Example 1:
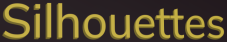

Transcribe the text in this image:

Silhouettes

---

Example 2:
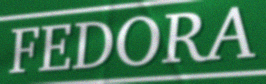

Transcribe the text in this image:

FEDORA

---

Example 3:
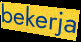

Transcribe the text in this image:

bekerja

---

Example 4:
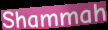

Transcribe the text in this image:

Shammah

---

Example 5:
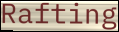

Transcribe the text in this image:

Rafting